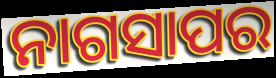
ନାଗସାପର